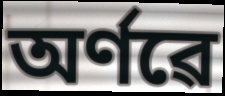
অৰ্ণৱে